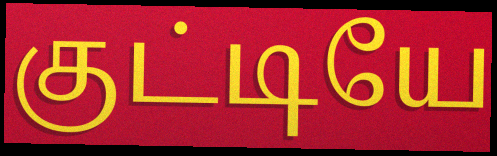
குட்டியே